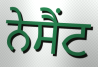
ਨੇਸੈਂਟ